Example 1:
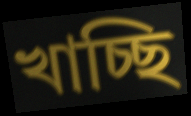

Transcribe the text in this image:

খাচ্ছি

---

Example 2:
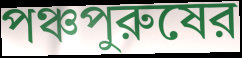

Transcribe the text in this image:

পঞ্চপুরুষের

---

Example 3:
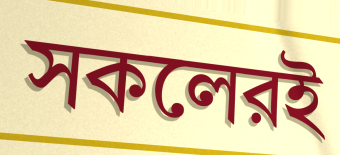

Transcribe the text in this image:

সকলেরই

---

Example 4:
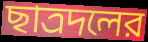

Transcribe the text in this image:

ছাত্রদলের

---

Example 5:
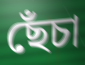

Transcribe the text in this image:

ছেঁচা